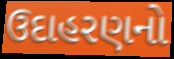
ઉદાહરણનો